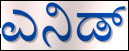
ಎನಿಡ್